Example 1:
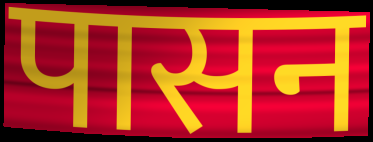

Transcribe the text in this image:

पासन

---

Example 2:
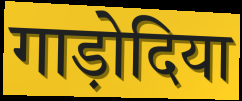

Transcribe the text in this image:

गाड़ोदिया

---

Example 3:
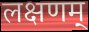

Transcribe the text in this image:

लक्षणम्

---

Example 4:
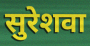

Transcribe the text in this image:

सुरेशवा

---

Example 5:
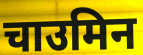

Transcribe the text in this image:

चाउमिन